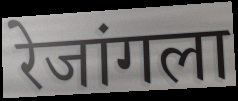
रेजांगला